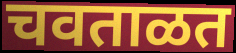
चवताळत